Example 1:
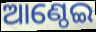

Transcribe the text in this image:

ଆଣ୍ଠେଇ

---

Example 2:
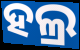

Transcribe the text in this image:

ହଲ୍ର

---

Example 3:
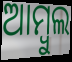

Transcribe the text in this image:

ଆମ୍ବୁଲ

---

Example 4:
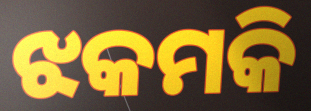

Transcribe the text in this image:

ଝକମକି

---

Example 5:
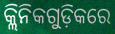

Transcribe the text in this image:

କ୍ଲିନିକଗୁଡ଼ିକରେ